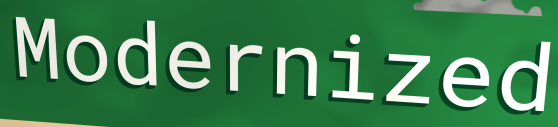
Modernized